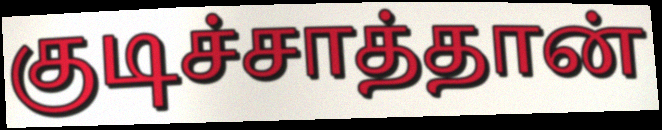
குடிச்சாத்தான்